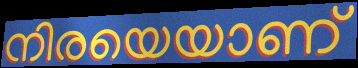
നിരയെയാണ്